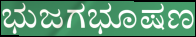
ಭುಜಗಭೂಷಣ